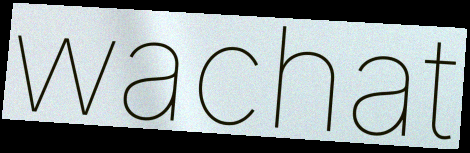
wachat